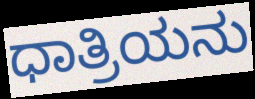
ಧಾತ್ರಿಯನು